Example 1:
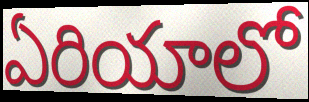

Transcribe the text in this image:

ఏరియాలో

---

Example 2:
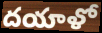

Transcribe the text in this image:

దయాళో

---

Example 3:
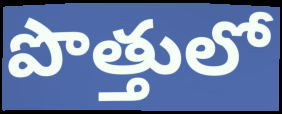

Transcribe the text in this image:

పొత్తులో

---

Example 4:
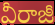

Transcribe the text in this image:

వీరాజీ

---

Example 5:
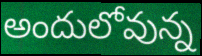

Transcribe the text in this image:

అందులోవున్న